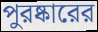
পুরষ্কারের